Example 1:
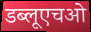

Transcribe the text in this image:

डब्लूएचओ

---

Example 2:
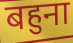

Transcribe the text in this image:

बहुना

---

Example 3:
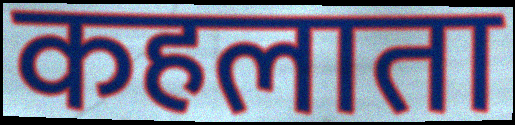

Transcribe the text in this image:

कहलाता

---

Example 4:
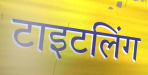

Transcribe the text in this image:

टाइटलिंग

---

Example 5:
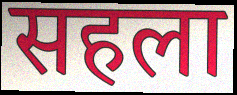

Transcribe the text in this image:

सहला